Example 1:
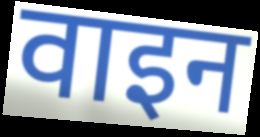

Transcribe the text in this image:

वाइन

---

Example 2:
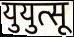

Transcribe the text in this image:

युयुत्सू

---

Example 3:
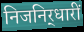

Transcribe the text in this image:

निजनिर्धारीं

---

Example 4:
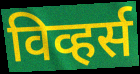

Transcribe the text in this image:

विव्हर्स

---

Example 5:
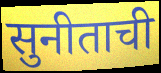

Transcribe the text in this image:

सुनीताची